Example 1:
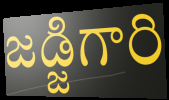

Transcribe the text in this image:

జడ్జిగారి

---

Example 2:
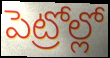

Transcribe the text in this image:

పెట్రోల్లో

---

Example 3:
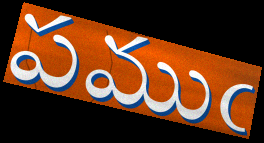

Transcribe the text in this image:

పముఁ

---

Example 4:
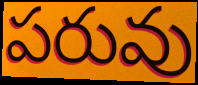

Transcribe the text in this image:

పరువు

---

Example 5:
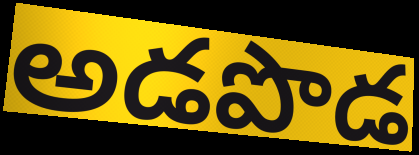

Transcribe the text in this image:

అడపొడ